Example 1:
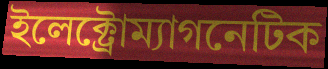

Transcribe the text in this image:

ইলেক্ট্রোম্যাগনেটিক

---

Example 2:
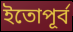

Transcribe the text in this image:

ইতোপূর্ব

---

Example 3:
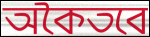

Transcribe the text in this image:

অকৈতবে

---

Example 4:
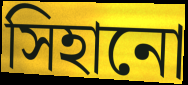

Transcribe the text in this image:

সিহানো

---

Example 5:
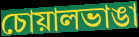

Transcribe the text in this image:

চোয়ালভাঙা